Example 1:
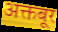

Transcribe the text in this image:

अक्तबूर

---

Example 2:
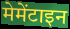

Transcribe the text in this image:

मेमेंटाइन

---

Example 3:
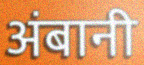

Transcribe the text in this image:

अंबानी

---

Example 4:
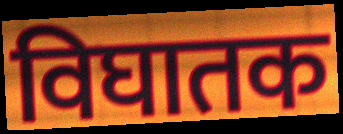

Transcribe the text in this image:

विघातक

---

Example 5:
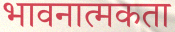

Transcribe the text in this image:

भावनात्मकता